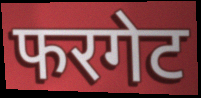
फरगेट